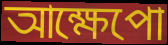
আক্ষেপো